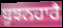
ਬੂਝਨਹਾਰੈ